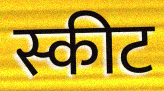
स्‍कीट